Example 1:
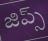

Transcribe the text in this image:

జిప్స్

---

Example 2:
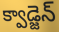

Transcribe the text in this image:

క్వాడ్జెన్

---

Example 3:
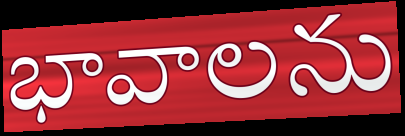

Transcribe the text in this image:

భావాలను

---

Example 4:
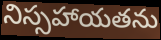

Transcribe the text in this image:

నిస్సహాయతను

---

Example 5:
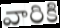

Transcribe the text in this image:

వారికి